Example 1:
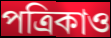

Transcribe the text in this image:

পত্রিকাও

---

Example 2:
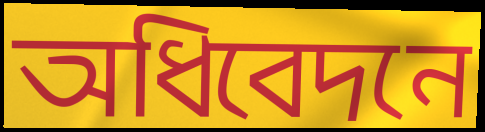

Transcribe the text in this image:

অধিবেদনে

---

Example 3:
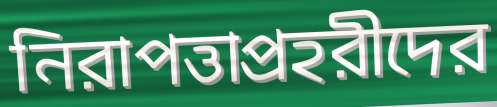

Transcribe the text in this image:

নিরাপত্তাপ্রহরীদের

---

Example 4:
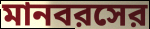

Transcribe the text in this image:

মানবরসের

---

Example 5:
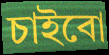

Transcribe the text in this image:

চাইবো